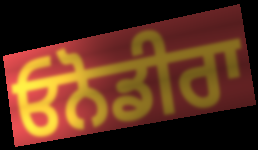
ਓਨੋਡੀਰਾ